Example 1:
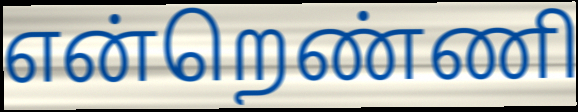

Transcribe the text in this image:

என்றெண்ணி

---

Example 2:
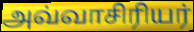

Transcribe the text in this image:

அவ்வாசிரியர்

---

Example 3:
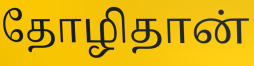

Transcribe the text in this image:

தோழிதான்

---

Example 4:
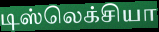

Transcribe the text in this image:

டிஸ்லெக்சியா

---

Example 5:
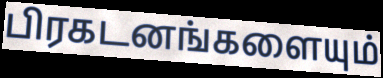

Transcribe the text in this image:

பிரகடனங்களையும்